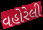
વહોરેલી